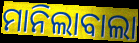
ମାନିଲାବାଲା